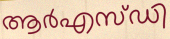
ആർഎസ്ഡി